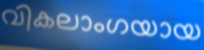
വികലാംഗയായ